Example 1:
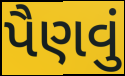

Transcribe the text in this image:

પૈણવું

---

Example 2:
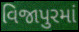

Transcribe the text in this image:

વિજાપુરમાં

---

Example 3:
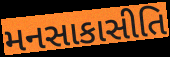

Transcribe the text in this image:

મનસાકાસીતિ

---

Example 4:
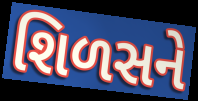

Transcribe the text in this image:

શિળસને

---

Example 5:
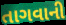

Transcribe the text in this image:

તાગવાની